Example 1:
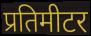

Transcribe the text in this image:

प्रतिमीटर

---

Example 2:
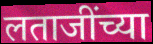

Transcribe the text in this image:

लताजींच्या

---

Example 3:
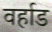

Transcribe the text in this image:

वर्हाड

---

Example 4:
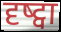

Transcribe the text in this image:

दृष्ट्वा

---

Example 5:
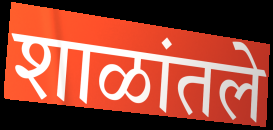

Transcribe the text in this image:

शाळांतले